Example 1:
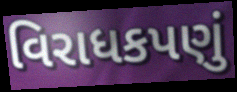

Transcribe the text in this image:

વિરાધકપણું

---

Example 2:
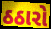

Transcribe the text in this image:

ઠઠારો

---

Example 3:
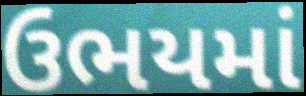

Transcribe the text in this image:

ઉભયમાં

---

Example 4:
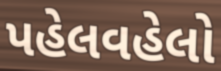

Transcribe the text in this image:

પહેલવહેલો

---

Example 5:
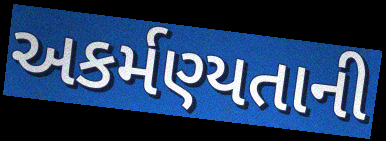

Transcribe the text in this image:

અકર્મણ્યતાની